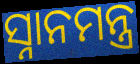
ସ୍ନାନମନ୍ତ୍ର